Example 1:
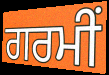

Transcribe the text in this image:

ਗਰਮੀਂ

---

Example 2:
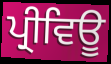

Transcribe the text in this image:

ਪ੍ਰੀਵਿਊ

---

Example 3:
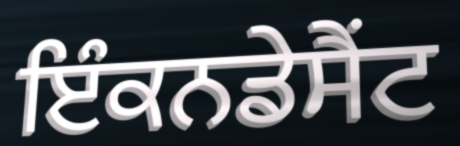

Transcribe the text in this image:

ਇੰਕਨਡੇਸੈਂਟ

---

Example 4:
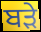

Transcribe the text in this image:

ਬਡ਼ੇ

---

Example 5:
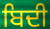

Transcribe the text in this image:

ਬਿਦੀ